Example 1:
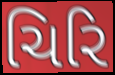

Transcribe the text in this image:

ચિરિ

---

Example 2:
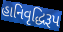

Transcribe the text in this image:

હાનિવૃદ્ધિરૂપ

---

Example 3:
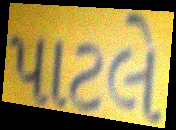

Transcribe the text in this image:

પાટલે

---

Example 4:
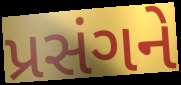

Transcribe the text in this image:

પ્રસંગને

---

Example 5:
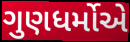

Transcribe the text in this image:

ગુણધર્મોએ